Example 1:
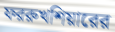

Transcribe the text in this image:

ফররুখশিয়ারের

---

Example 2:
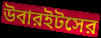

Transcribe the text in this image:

উবারইটসের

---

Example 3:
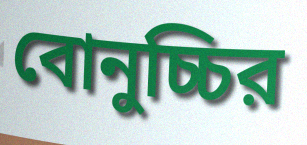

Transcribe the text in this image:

বোনুচ্চির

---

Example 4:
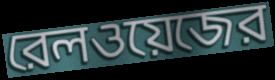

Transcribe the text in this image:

রেলওয়েজের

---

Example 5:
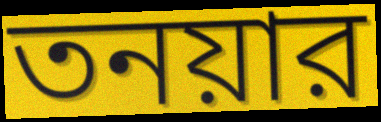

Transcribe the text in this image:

তনয়ার